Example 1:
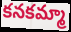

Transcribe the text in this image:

కనకమ్మా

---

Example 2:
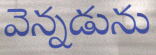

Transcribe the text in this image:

వెన్నడును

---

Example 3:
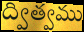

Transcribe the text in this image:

ద్విత్వము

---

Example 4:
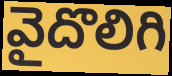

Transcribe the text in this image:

వైదొలిగి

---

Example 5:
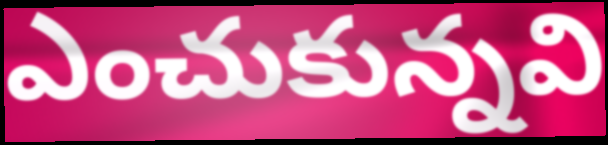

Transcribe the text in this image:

ఎంచుకున్నవి